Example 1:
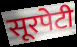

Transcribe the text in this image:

सूरपेटी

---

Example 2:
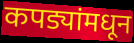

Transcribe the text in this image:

कपड्यांमधून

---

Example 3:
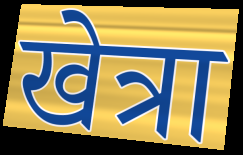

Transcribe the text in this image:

खेत्रा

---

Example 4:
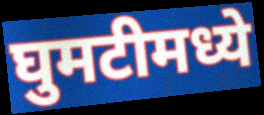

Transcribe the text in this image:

घुमटीमध्ये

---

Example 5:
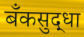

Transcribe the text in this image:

बँकसुद्धा